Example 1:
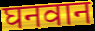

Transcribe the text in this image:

घनवान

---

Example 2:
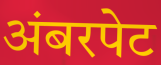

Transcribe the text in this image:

अंबरपेट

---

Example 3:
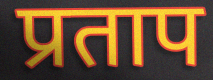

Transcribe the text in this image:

प्रताप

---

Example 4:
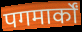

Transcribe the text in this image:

पगमार्कों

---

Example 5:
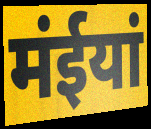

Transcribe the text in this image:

मंईयां